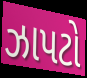
ઝાપટો